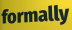
formally